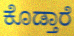
ಕೊಡ್ತಾರೆ